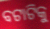
ବଟାଟିକୁ